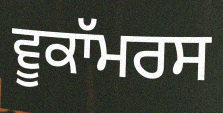
ਵੂਕਾੱਮਰਸ